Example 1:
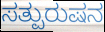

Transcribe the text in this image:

ಸತ್ಪುರುಷನ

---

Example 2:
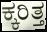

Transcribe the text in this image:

ಕ್ಕರಿತ್ತ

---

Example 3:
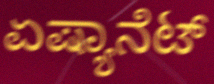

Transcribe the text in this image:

ಏಷ್ಯಾನೆಟ್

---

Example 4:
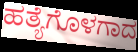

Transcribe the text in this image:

ಹತ್ಯೆಗೊಳಗಾದ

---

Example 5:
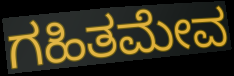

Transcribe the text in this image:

ಗಹಿತಮೇವ